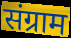
संग्राम